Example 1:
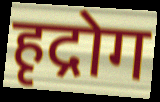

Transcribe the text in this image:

हृद्रोग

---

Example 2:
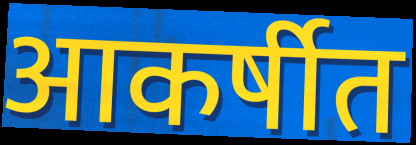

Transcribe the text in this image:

आकर्षीत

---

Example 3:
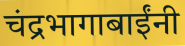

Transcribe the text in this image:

चंद्रभागाबाईंनी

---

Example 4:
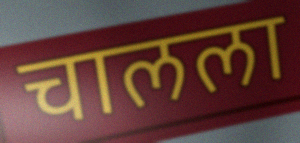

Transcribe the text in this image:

चालला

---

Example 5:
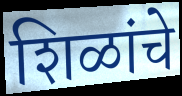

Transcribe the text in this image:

शिळांचे